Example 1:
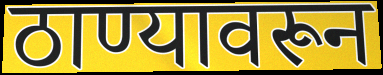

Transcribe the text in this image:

ठाण्यावरून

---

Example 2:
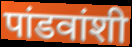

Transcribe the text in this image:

पांडवांशी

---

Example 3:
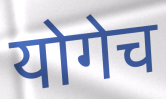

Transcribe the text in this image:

योगेच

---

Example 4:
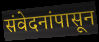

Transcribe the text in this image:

संवेदनांपासून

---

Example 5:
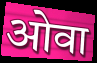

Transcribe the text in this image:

ओवा